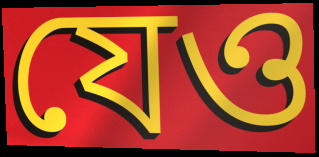
যেও